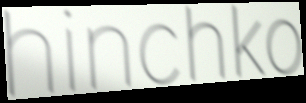
hinchko